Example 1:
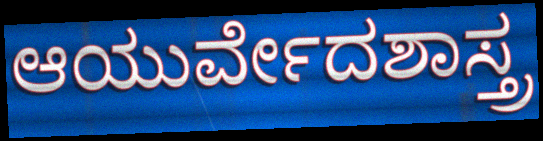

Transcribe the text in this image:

ಆಯುರ್ವೇದಶಾಸ್ತ್ರ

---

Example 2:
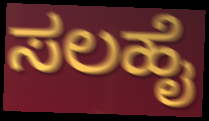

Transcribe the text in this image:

ಸಲಹೈ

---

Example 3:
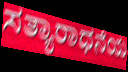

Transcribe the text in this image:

ಸತ್ಯಾರಾಧನೆಯ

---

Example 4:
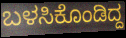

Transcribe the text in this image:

ಬಳಸಿಕೊಂಡಿದ್ದ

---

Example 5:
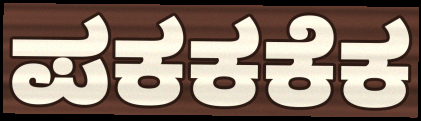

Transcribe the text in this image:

ಪಕಕಕೆಕ